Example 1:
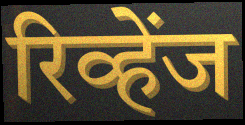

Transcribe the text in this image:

रिव्हेंज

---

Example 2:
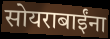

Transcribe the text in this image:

सोयराबाईंना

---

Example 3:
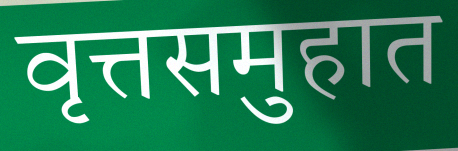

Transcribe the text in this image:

वृत्तसमुहात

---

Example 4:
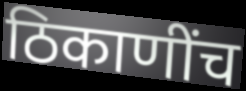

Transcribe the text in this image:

ठिकाणींच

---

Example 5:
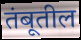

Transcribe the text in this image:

तंबूतील